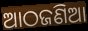
ଆଠଜଣିଆ